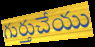
గుర్తుచేయు